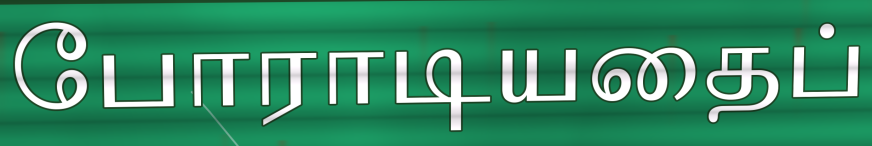
போராடியதைப்